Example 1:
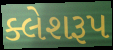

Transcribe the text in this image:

ક્લેશરૂપ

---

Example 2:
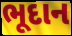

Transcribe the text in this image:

ભૂદાન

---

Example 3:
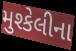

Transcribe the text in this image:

મુશ્કેલીના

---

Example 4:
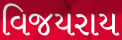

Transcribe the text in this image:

વિજયરાય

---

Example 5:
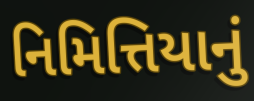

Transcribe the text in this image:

નિમિત્તિયાનું